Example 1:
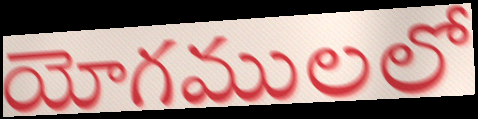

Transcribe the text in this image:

యోగములలో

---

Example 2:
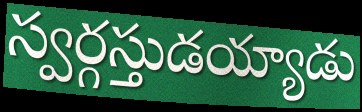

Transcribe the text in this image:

స్వర్గస్తుడయ్యాడు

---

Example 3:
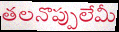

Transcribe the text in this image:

తలనొప్పులేమీ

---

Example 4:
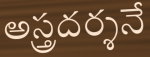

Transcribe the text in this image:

అస్త్రదర్శనే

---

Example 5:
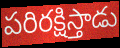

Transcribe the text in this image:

పరిరక్షిస్తాడు